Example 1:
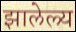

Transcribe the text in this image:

झालेल्य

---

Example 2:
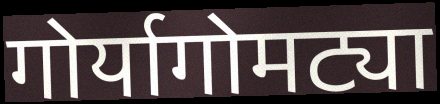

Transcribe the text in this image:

गोर्यागोमट्या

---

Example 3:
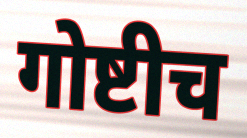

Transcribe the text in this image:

गोष्टीच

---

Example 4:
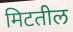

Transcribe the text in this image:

मिटतील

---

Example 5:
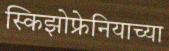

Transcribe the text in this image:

स्किझोफ्रेनियाच्या